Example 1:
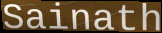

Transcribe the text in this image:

Sainath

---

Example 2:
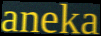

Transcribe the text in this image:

aneka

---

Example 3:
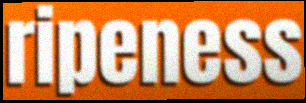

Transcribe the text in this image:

ripeness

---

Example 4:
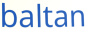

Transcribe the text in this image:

baltan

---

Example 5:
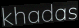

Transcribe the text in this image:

khadas